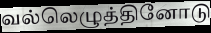
வல்லெழுத்தினோடு